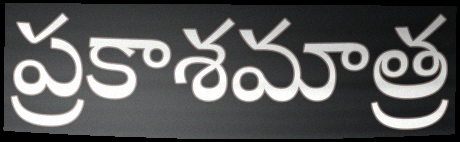
ప్రకాశమాత్ర